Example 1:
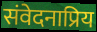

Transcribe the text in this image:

संवेदनाप्रिय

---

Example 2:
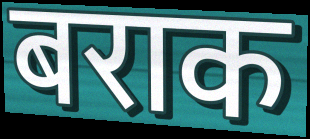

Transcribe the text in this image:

बराक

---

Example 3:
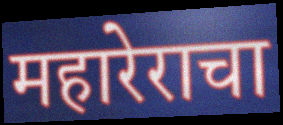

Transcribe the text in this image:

महारेराचा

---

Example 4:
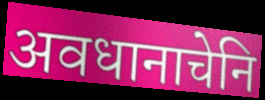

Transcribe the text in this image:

अवधानाचेनि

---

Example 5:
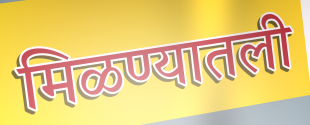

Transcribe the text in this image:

मिळण्यातली